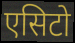
एसिटो